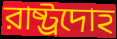
রাষ্ট্রদোহ